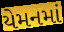
યેમનમાં